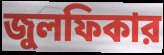
জুলফিকার